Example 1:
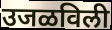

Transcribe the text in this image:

उजळविली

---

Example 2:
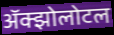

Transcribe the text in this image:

ॲक्झोलोटल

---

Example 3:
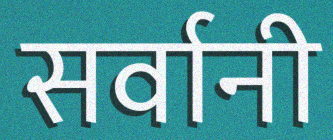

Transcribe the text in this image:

सर्वानी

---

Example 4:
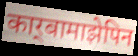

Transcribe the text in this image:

कार्बामाझेपिन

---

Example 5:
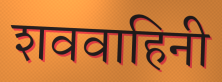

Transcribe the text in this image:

शववाहिनी